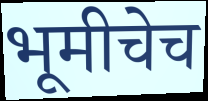
भूमीचेच